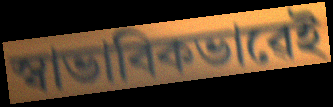
স্বাভাবিকভাৱেই